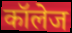
कॉलेज